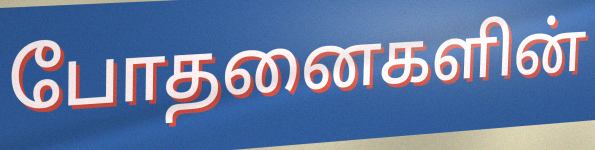
போதனைகளின்